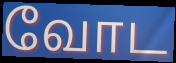
வோட